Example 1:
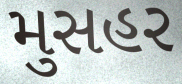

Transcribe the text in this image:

મુસહર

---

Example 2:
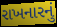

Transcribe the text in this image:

રાખનારનું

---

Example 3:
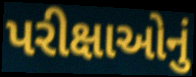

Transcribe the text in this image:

પરીક્ષાઓનું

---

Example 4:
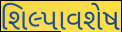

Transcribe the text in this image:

શિલ્પાવશેષ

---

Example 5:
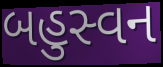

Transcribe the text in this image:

બહુસ્વન